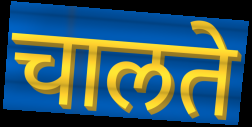
चालते